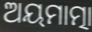
ଅୟମାତ୍ମା